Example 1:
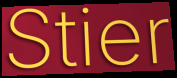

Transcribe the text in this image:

Stier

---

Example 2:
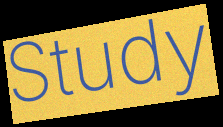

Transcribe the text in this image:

Study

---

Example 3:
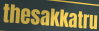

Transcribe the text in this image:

thesakkatru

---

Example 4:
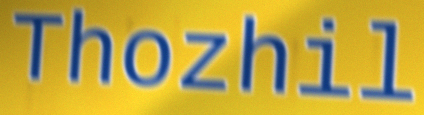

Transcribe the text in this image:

Thozhil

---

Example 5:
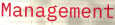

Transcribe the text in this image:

Management